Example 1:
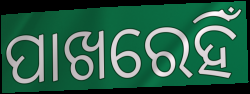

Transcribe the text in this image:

ପାଖରେହିଁ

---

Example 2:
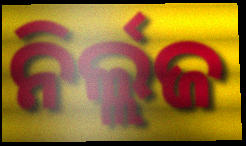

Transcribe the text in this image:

ନିର୍ଲ୍ଲଜ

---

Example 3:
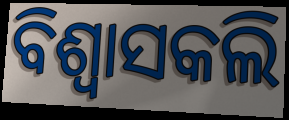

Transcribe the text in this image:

ବିଶ୍ଵାସକଲି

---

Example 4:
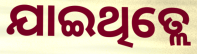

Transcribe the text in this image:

ଯାଇଥିତ୍ଲେ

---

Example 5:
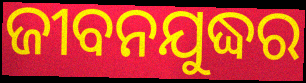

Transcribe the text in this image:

ଜୀବନଯୁଦ୍ଧର